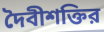
দৈবীশক্তির